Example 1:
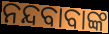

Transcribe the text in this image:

ନନ୍ଦବାବାଙ୍କ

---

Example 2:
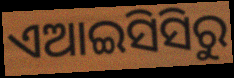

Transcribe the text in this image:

ଏଆଇସିସିରୁ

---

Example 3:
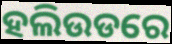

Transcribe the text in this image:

ହଲିଉଡରେ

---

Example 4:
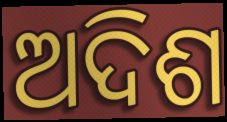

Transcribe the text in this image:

ଅଦିଶ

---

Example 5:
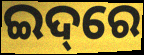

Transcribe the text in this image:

ଇଦ୍‌ରେ